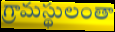
గ్రామస్థులంతా